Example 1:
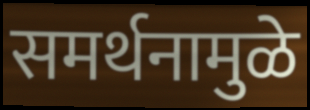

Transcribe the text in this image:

समर्थनामुळे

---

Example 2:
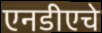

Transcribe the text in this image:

एनडीएचे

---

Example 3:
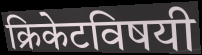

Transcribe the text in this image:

क्रिकेटविषयी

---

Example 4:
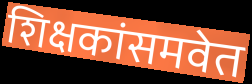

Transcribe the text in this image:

शिक्षकांसमवेत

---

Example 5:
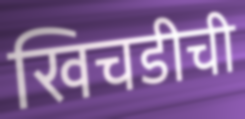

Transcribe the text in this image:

खिचडीची